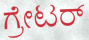
ಗ್ರೇಟರ್